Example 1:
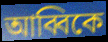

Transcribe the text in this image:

আব্বিকে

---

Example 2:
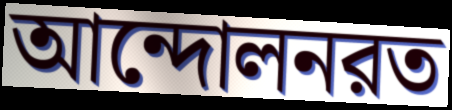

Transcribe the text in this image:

আন্দোলনরত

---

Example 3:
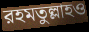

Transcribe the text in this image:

রহমতুল্লাহও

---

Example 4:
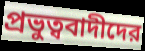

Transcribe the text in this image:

প্রভুত্ববাদীদের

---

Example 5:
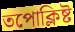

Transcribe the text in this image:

তপোক্লিষ্ট